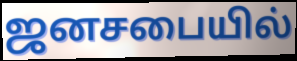
ஜனசபையில்